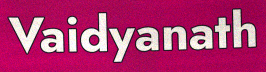
Vaidyanath